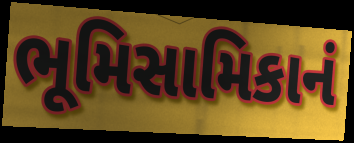
ભૂમિસામિકાનં